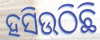
ହସିଉଠିଛି